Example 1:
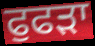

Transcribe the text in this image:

ਫੁਫੜਾ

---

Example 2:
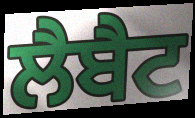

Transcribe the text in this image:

ਲੈਬੈਟ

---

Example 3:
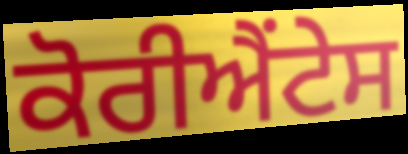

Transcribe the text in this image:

ਕੋਰੀਐਂਟੇਸ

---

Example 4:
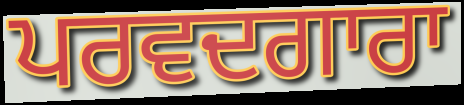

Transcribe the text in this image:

ਪਰਵਦਗਾਰਾ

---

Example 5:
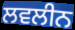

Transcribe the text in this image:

ਲਵਲੀਨ